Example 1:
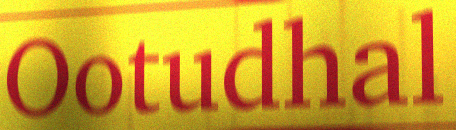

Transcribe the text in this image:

Ootudhal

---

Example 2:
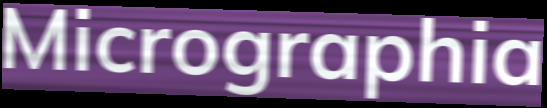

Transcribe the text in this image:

Micrographia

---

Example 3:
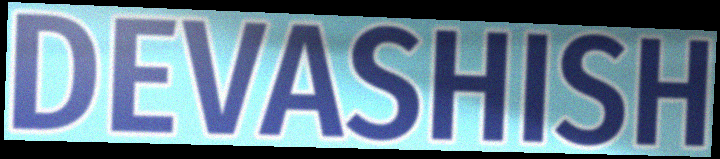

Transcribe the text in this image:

DEVASHISH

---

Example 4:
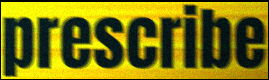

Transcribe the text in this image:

prescribe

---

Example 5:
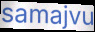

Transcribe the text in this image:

samajvu